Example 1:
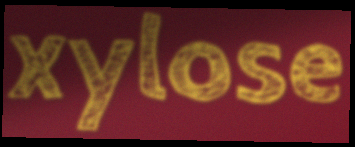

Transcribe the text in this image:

xylose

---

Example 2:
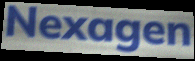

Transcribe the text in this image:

Nexagen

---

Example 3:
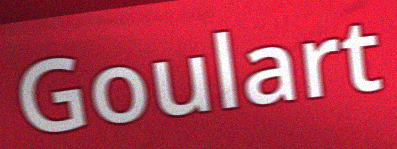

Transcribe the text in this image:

Goulart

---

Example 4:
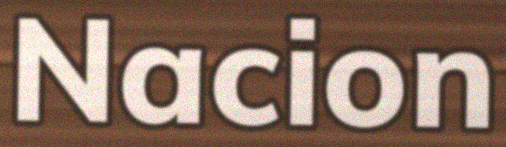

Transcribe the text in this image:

Nacion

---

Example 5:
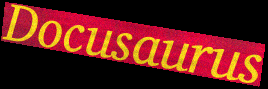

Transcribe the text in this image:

Docusaurus